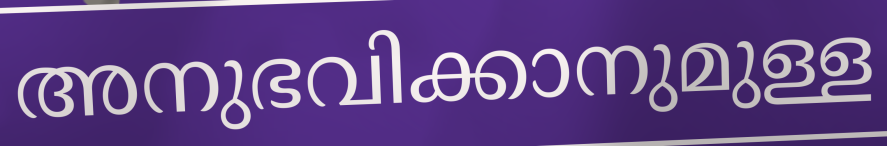
അനുഭവിക്കാനുമുള്ള